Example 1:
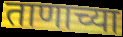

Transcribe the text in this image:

ताणाच्या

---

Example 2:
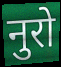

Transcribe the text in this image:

नुरो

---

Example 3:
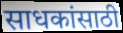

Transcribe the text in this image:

साधकांसाठी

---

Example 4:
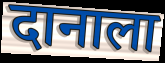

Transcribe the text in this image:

दानाला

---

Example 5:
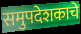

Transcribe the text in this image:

समुपदेशकाचे